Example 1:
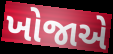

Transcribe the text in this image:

ખોજાએ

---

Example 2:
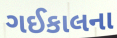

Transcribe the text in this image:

ગઈકાલના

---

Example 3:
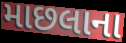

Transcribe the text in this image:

માછલાના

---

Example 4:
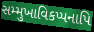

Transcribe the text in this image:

સમ્મુખાવિકપ્પનાપિ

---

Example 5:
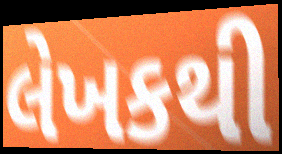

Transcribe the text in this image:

લેખકથી